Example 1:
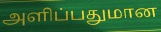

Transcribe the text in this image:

அளிப்பதுமான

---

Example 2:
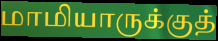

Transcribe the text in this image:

மாமியாருக்குத்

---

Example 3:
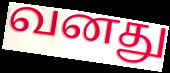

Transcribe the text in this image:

வனது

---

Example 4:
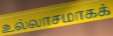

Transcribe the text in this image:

உல்லாசமாகக்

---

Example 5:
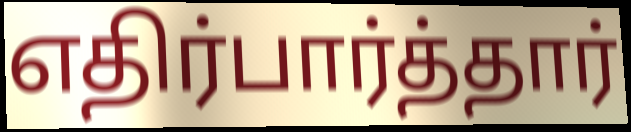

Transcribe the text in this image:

எதிர்பார்த்தார்